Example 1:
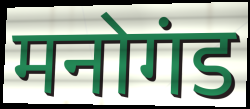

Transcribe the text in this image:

मनोगंड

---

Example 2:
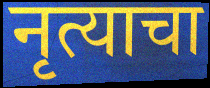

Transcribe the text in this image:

नृत्याचा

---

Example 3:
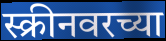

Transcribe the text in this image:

स्क्रीनवरच्या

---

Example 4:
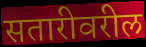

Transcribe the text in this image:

सतारीवरील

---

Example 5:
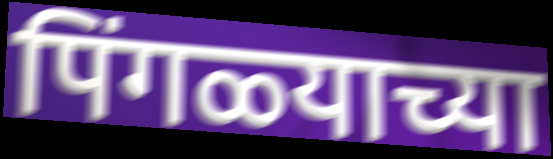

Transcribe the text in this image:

पिंगळ्याच्या